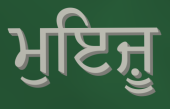
ਮੁਇਜ਼ੂ